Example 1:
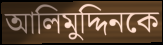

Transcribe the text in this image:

আলিমুদ্দিনকে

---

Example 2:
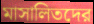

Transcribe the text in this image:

মাসালিতদের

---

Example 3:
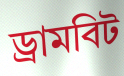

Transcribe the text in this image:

ড্রামবিট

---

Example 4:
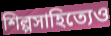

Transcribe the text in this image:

শিল্পসাহিত্যেও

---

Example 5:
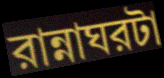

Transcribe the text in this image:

রান্নাঘরটা